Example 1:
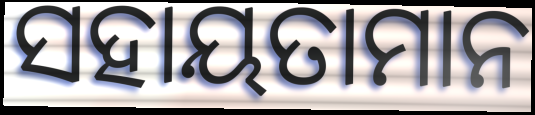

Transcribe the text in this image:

ସହାୟତାମାନ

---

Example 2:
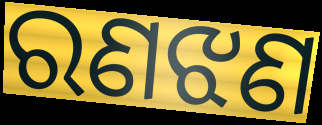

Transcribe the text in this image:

ରଣଝଣ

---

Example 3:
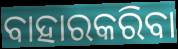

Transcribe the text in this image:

ବାହାରକରିବା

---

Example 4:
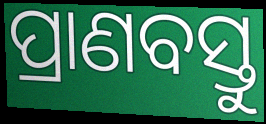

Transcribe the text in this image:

ପ୍ରାଣବସ୍ତୁ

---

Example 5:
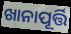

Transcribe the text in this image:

ଖାନାପୂର୍ତ୍ତି